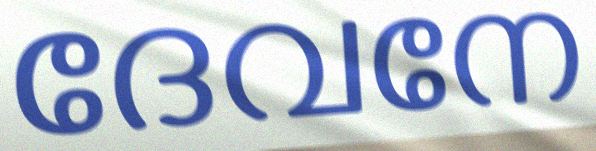
ദേവനേ